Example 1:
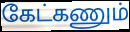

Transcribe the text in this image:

கேட்கணும்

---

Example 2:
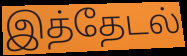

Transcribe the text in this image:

இத்தேடல்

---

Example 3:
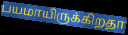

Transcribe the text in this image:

பயமாயிருக்கிறதா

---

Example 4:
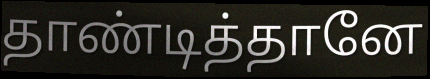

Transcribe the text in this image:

தாண்டித்தானே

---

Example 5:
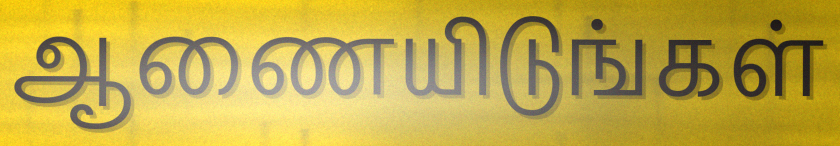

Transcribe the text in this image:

ஆணையிடுங்கள்